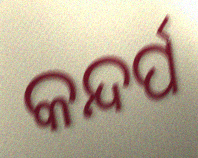
କନ୍ଦର୍ପ